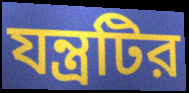
যন্ত্রটির